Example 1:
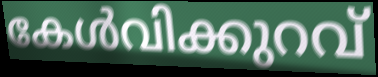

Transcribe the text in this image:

കേൾവിക്കുറവ്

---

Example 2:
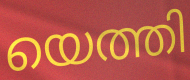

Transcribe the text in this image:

യെത്തി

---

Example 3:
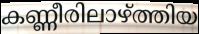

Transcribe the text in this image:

കണ്ണീരിലാഴ്ത്തിയ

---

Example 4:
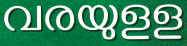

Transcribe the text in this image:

വരയുളള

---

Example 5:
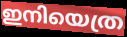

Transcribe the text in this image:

ഇനിയെത്ര